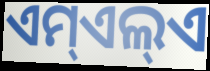
ଏମ୍ଏଲ୍ଏ